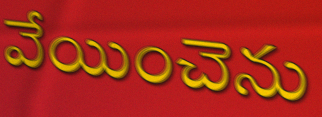
వేయించెను